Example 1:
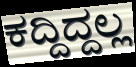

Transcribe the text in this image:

ಕದ್ದಿದ್ದಲ್ಲ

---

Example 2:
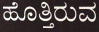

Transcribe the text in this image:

ಹೊತ್ತಿರುವ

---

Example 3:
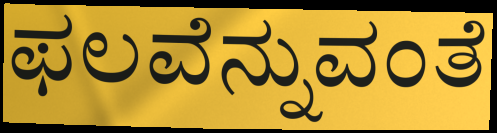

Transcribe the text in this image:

ಫಲವೆನ್ನುವಂತೆ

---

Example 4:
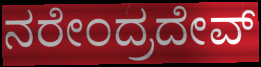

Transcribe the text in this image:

ನರೇಂದ್ರದೇವ್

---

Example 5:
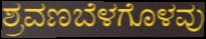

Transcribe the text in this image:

ಶ್ರವಣಬೆಳಗೊಳವು